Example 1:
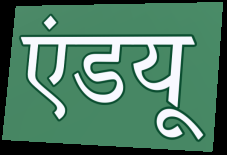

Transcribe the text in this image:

एंडयू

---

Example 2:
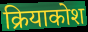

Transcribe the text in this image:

क्रियाकोश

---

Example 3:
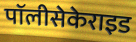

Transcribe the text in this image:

पॉलीसेकेराइड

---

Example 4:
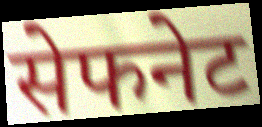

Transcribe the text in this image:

सेफनेट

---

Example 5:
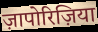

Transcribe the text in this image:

ज़ापोरिज़िया